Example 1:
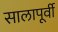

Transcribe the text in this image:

सालापूर्वी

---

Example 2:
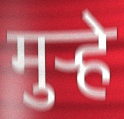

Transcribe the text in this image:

मुऱ्हे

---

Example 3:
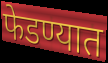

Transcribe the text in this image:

फेडण्यात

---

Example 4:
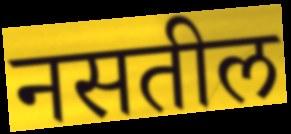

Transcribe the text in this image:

नसतील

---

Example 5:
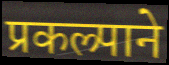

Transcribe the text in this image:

प्रकल्पाने